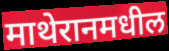
माथेरानमधील